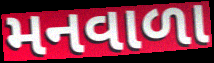
મનવાળા